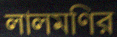
লালমণির